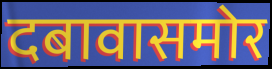
दबावासमोर